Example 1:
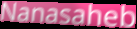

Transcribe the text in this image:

Nanasaheb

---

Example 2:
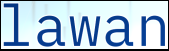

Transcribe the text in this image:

lawan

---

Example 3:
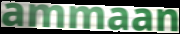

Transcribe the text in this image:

ammaan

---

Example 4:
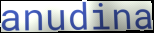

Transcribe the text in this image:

anudina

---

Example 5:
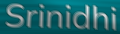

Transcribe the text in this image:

Srinidhi